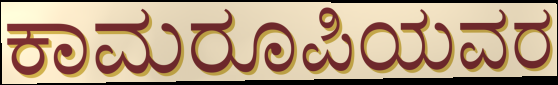
ಕಾಮರೂಪಿಯವರ